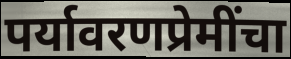
पर्यावरणप्रेमींचा